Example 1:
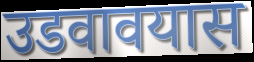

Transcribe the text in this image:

उडवावयास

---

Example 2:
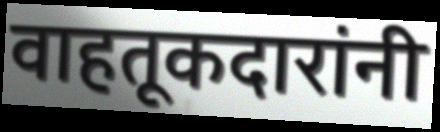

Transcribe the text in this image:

वाहतूकदारांनी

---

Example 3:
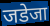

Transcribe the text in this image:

जडेजा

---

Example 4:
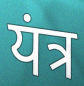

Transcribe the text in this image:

यंत्र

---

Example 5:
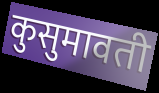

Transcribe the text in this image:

कुसुमावती